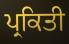
ਪ੍ਰਕਿਤੀ